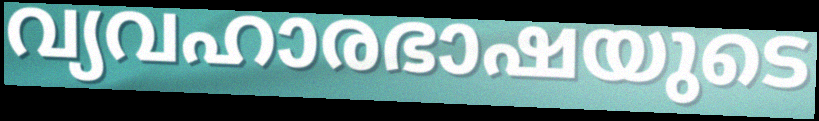
വ്യവഹാരഭാഷയുടെ